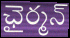
ఛైర్మన్